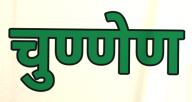
चुण्णेण